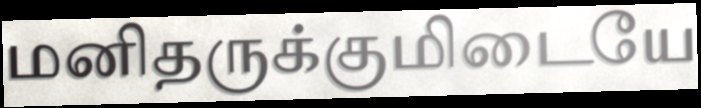
மனிதருக்குமிடையே